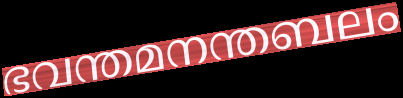
ഭവന്തമനന്തബലം